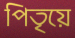
পিতৃয়ে